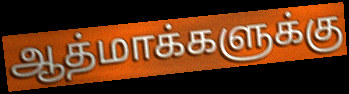
ஆத்மாக்களுக்கு